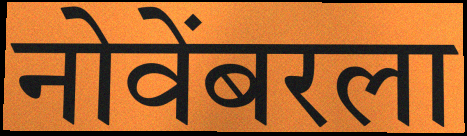
नोवेंबरला